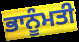
ਭਾਨੂੰਮਤੀ